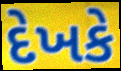
દેખકે